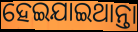
ହେଇଯାଇଥାନ୍ତା